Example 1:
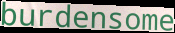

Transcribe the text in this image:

burdensome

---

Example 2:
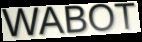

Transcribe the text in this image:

WABOT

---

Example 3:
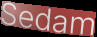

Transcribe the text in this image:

Sedam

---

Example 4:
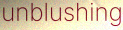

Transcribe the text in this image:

unblushing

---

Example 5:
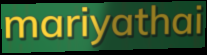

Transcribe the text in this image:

mariyathai